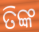
ତିଙ୍କ